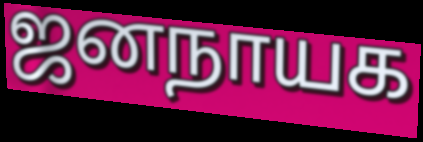
ஜனநாயக